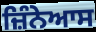
ਜ਼ਿੰਨੇਆਸ